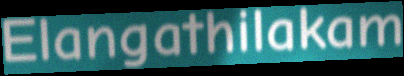
Elangathilakam